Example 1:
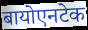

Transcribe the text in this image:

बायोएनटेक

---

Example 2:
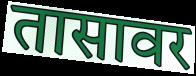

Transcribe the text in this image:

तासावर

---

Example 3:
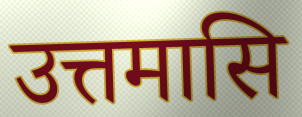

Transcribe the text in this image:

उत्तमासि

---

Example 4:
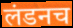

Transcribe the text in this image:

लंडनच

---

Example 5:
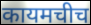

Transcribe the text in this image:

कायमचीच